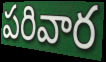
పరివార